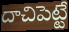
దాచిపెట్టే